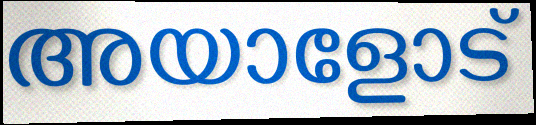
അയാളോട്